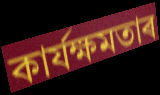
কাৰ্যক্ষমতাৰ